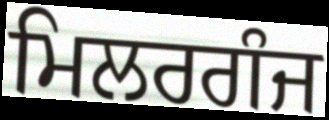
ਮਿਲਰਗੰਜ